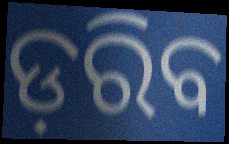
ଡ଼ରିବ